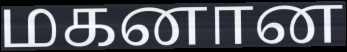
மகனான